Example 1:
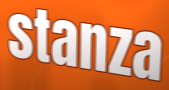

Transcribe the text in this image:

stanza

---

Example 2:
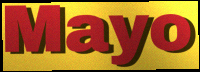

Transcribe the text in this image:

Mayo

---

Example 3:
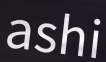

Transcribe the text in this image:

ashi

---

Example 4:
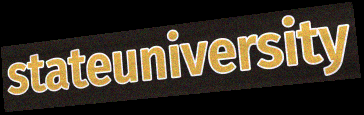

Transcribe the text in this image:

stateuniversity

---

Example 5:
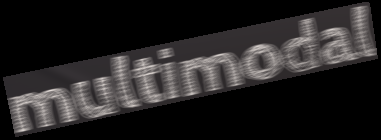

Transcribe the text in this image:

multimodal